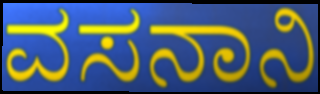
ವಸನಾನಿ